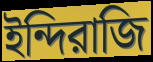
ইন্দিরাজি